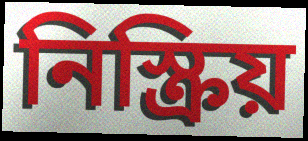
নিস্ক্রিয়